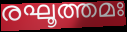
രഘൂത്തമഃ